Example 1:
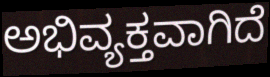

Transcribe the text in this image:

ಅಭಿವ್ಯಕ್ತವಾಗಿದೆ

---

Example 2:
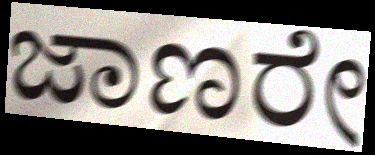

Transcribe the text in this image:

ಜಾಣರೇ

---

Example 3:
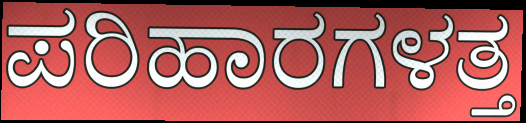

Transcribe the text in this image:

ಪರಿಹಾರಗಳತ್ತ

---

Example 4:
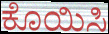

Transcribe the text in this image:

ಕೊಯಿಸಿ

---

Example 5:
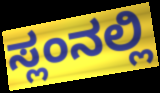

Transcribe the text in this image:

ಸ್ಲಂನಲ್ಲಿ